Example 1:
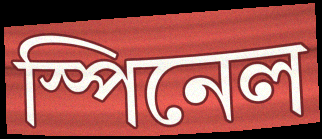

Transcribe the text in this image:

স্পিনেল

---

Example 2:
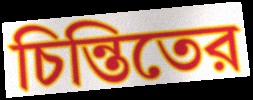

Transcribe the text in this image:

চিন্তিতের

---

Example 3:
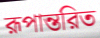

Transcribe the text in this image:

রূপান্তরিত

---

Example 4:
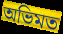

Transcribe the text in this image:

অভিমত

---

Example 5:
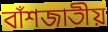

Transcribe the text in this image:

বাঁশজাতীয়